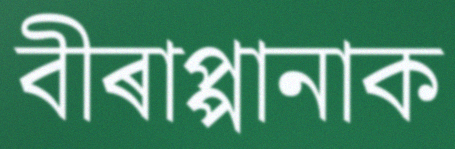
বীৰাপ্পানাক